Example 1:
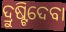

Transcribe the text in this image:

ଦ୍ରୁଷ୍ଟିଦେବା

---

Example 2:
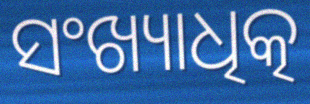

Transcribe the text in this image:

ସଂଖ୍ୟାଧିତ୍କ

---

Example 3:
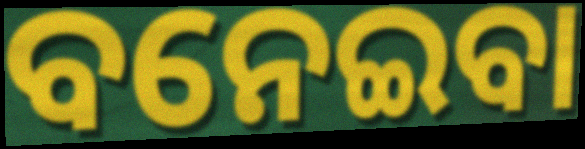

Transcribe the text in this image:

ବନେଇବା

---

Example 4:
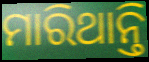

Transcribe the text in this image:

ମାରିଥାନ୍ତି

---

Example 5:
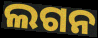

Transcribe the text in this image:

ଲଗନ